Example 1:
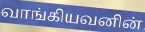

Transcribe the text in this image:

வாங்கியவனின்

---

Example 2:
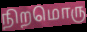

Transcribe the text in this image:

நிறமொரு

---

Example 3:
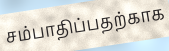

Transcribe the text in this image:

சம்பாதிப்பதற்காக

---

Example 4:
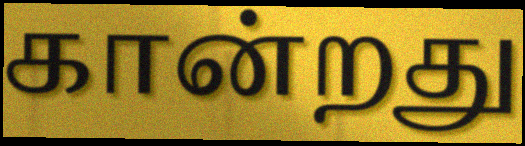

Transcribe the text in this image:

கான்றது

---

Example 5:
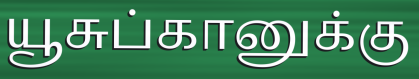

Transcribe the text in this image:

யூசுப்கானுக்கு